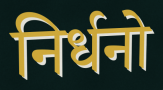
निर्धनो